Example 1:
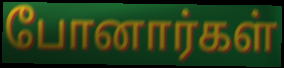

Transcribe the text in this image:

போனார்கள்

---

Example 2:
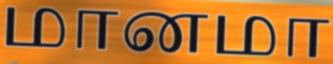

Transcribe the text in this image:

மானமா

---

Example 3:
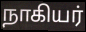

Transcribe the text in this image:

நாகியர்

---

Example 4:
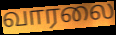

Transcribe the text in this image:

வாரலை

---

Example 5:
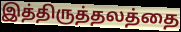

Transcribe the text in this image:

இத்திருத்தலத்தை